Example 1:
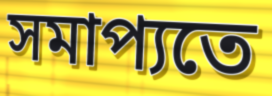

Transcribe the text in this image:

সমাপ্যতে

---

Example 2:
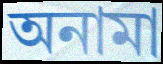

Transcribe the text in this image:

অনামা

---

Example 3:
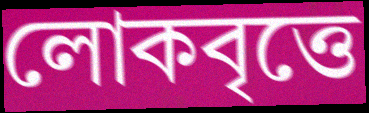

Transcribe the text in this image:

লোকবৃত্তে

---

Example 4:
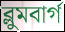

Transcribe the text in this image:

ব্লুমবার্গ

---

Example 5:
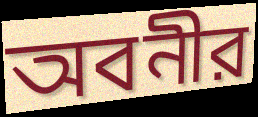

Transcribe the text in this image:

অবনীর